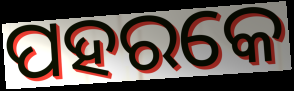
ପହରକେ